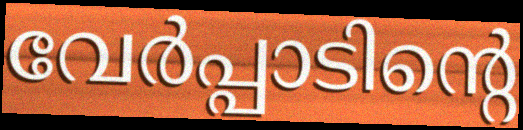
വേർപ്പാടിന്റെ